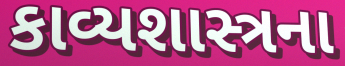
કાવ્યશાસ્ત્રના